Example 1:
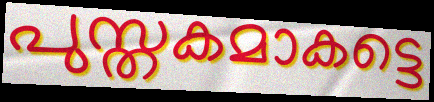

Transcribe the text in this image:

പുസ്തകമാകട്ടെ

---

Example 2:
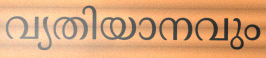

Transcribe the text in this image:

വ്യതിയാനവും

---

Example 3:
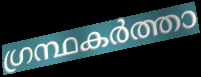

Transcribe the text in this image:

ഗ്രന്ഥകർത്താ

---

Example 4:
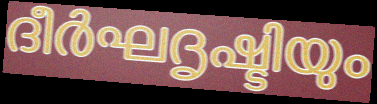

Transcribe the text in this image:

ദീർഘദൃഷ്ടിയും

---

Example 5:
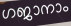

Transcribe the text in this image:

ഗജാനാം